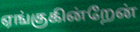
ஏங்குகின்றேன்